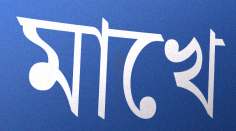
মাখে